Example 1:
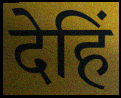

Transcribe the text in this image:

देहिं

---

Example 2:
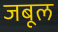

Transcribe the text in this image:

जबूल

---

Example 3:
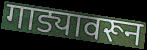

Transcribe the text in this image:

गाड्यावरून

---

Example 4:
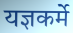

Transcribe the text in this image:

यज्ञकर्मे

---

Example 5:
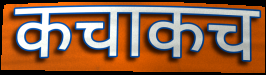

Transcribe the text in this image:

कचाकच